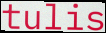
tulis